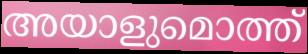
അയാളുമൊത്ത്